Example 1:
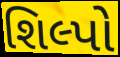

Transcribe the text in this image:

શિલ્પો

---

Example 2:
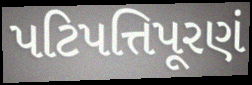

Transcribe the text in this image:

પટિપત્તિપૂરણં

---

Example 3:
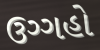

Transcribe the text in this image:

ઉગ્ગહો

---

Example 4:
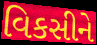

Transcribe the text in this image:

વિકસીને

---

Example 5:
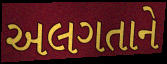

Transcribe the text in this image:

અલગતાને